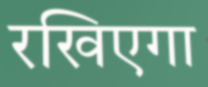
रखिएगा